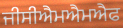
ਜੀਸੀਐਮਐਮਐਫ